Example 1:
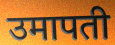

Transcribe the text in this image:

उमापती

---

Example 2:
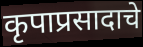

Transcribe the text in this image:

कृपाप्रसादाचे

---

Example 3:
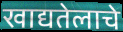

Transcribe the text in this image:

खाद्यतेलाचे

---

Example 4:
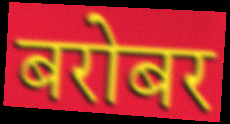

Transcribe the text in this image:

बरोबर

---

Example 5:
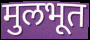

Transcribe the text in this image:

मुलभूत